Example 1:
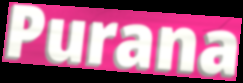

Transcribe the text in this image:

Purana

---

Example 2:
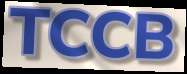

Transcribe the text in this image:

TCCB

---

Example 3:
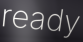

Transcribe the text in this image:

ready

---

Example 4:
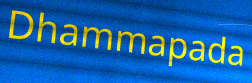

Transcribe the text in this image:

Dhammapada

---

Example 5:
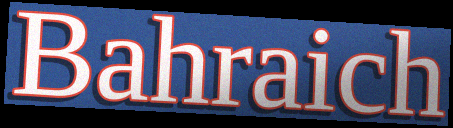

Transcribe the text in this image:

Bahraich